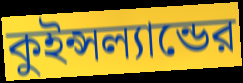
কুইন্সল্যান্ডের